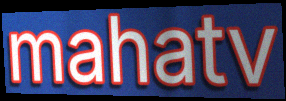
mahatv